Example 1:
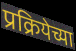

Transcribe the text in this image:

प्रक्रियेच्या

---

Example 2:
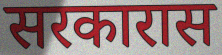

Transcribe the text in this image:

सरकारास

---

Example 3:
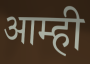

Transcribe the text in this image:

आम्‍ही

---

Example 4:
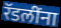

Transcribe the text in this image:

रॅडलींना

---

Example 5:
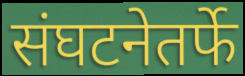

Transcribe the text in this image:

संघटनेतर्फे